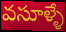
వసూళ్ళే